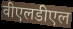
वीएलडीएल